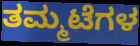
ತಮ್ಮಟೆಗಳ